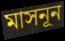
মাসনূন